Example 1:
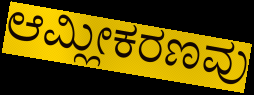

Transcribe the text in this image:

ಆಮ್ಲೀಕರಣವು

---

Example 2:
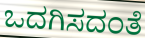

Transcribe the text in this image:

ಒದಗಿಸದಂತೆ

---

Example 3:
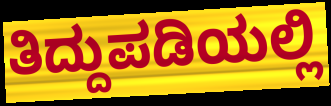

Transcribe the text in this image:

ತಿದ್ದುಪಡಿಯಲ್ಲಿ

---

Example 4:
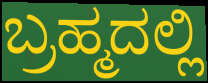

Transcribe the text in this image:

ಬ್ರಹ್ಮದಲ್ಲಿ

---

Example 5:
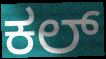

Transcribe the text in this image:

ಕಲ್